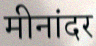
मीनांदर